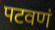
पटवणं